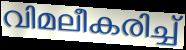
വിമലീകരിച്ച്